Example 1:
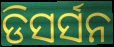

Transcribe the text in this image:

ଡିସର୍ସନ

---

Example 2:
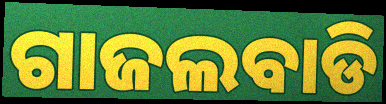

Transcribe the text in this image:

ଗାଜଲବାଡି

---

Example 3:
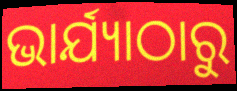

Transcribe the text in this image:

ଭାର୍ଯ୍ୟାଠାରୁ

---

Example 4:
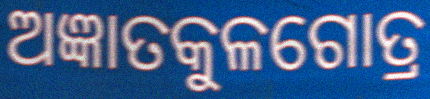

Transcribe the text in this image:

ଅଜ୍ଞାତକୁଳଗୋତ୍ର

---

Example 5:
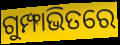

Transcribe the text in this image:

ଗୁମ୍ଫାଭିତରେ